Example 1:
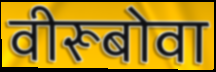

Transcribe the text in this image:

वीरूबोवा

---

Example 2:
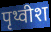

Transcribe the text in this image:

पृथ्वीश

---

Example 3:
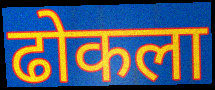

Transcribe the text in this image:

ढोकला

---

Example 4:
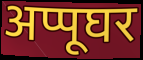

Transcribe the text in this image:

अप्पूघर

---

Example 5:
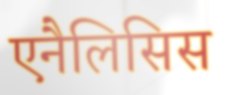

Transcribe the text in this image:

एनैलिसिस